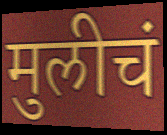
मुलीचं